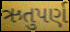
ઋતુપર્ણ